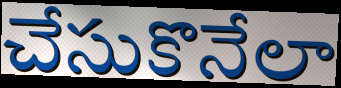
చేసుకొనేలా